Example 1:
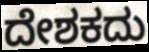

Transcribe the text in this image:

ದೇಶಕದು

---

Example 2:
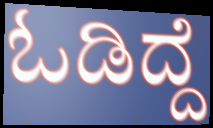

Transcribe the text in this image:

ಓಡಿದ್ದೆ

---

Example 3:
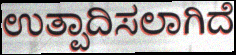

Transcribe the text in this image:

ಉತ್ಪಾದಿಸಲಾಗಿದೆ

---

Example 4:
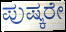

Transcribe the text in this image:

ಪುಷ್ಕರೇ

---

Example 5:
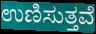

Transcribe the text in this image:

ಉಣಿಸುತ್ತವೆ